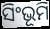
ସିଂଭୂମି